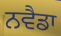
ਨਵੈਡਾ